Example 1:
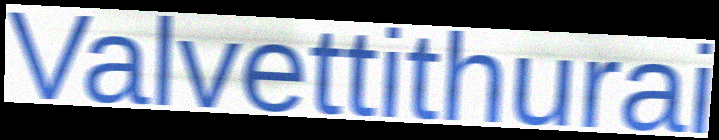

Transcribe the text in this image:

Valvettithurai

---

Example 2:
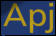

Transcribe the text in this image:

Apj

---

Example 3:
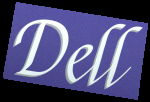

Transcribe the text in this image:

Dell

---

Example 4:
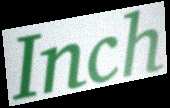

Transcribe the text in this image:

Inch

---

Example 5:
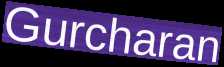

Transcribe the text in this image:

Gurcharan